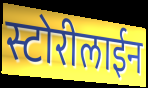
स्टोरीलाईन